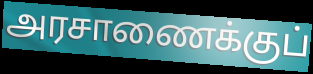
அரசாணைக்குப்